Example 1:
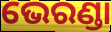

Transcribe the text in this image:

ଭେରଣ୍ଡା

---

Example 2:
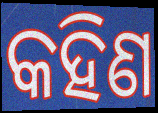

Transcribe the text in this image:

କହିଣ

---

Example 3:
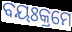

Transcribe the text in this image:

ବୟଃକ୍ରମେ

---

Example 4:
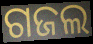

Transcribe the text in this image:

ଗଜଲ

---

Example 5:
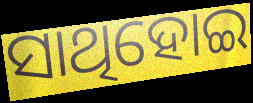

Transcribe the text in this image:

ସାଥିହୋଇ